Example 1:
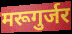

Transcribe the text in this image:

मरूगुर्जर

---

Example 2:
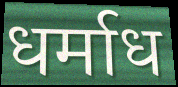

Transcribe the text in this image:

धर्माध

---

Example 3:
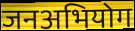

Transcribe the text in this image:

जनअभियोग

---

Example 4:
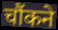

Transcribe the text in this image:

चौंकने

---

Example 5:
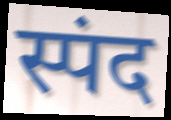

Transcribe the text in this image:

स्पंद